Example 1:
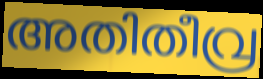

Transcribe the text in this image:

അതിതീവ്ര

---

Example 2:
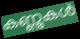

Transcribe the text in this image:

കണ്ണുകൾ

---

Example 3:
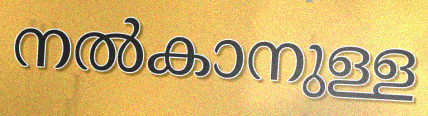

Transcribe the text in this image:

നൽകാനുള്ള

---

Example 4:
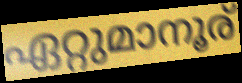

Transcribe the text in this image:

ഏറ്റുമാനൂര്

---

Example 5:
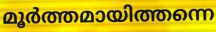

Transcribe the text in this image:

മൂർത്തമായിത്തന്നെ